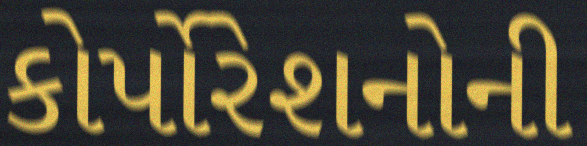
કોર્પોરેશનોની